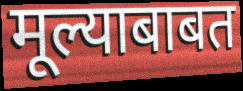
मूल्याबाबत